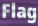
Flag